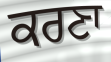
ਕਰਣਾ